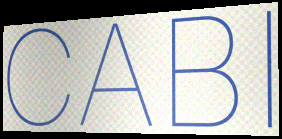
CABI